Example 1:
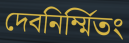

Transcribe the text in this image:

দেবনির্ম্মিতং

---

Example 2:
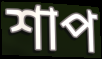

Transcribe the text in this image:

শাপ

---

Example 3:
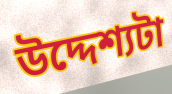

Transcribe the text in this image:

উদ্দেশ্যটা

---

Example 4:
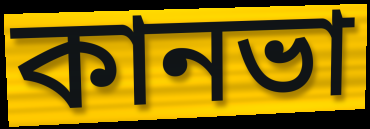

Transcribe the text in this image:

কানভা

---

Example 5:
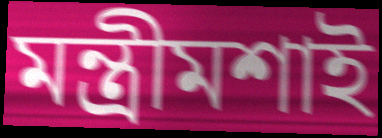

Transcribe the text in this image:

মন্ত্রীমশাই